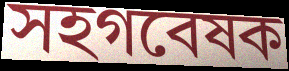
সহগবেষক